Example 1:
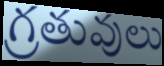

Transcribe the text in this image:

గ్రతువులు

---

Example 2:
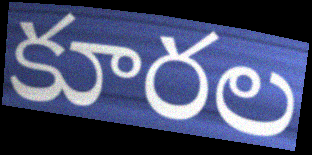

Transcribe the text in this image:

కూరల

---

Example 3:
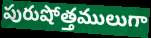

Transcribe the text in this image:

పురుషోత్తములుగా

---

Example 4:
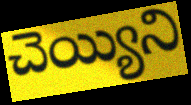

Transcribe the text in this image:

చెయ్యిని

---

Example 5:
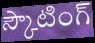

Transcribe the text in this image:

స్కౌటింగ్